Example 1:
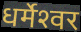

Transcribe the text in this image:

धर्मेश्वर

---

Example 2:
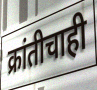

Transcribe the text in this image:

क्रांतीचाही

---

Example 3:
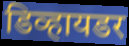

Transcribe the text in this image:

डिव्हायडर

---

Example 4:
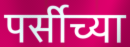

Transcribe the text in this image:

पर्सीच्या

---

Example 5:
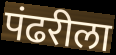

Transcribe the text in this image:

पंढरीला